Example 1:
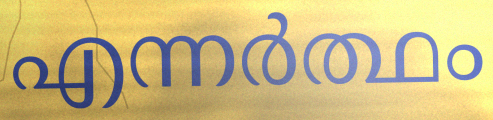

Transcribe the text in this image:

എന്നർത്ഥം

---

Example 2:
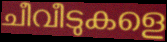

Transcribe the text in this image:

ചീവീടുകളെ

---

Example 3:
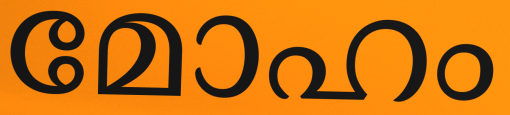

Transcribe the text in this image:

മോഹം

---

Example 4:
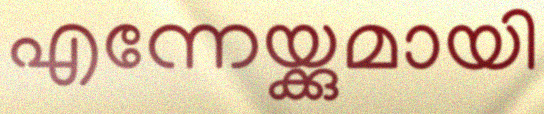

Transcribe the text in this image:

എന്നേയ്ക്കുമായി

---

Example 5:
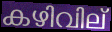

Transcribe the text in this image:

കഴിവില്